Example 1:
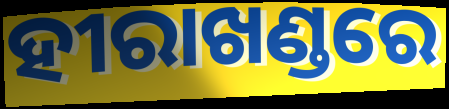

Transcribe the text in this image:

ହୀରାଖଣ୍ଡରେ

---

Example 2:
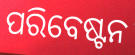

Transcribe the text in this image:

ପରିବେଷ୍ଟନ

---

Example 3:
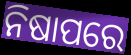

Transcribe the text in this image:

ନିଷାପରେ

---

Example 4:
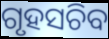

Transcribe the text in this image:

ଗୃହସଚିବ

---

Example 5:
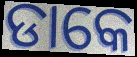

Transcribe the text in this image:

ଡାକେ